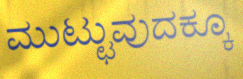
ಮುಟ್ಟುವುದಕ್ಕೂ